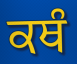
ਕਥੰ